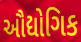
ઔદ્યોગિક